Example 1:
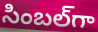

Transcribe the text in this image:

సింబల్‌గా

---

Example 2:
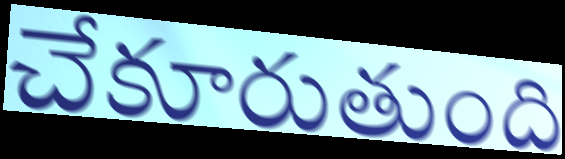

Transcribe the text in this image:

చేకూరుతుంది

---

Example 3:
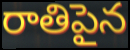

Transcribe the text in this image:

రాతిపైన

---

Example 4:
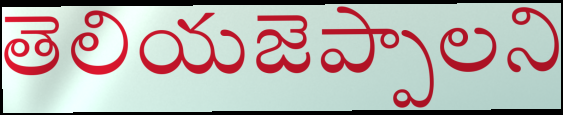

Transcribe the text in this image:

తెలియజెప్పాలని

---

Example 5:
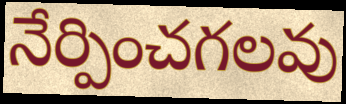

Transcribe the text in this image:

నేర్పించగలవు